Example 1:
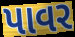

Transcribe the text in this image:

પાવર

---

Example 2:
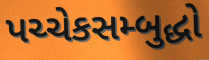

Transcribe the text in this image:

પચ્ચેકસમ્બુદ્ધો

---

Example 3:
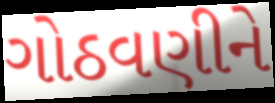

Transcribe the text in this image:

ગોઠવણીને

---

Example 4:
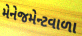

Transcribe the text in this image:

મેનેજમેન્ટવાળા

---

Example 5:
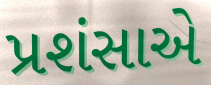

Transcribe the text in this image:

પ્રશંસાએ